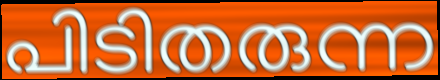
പിടിതരുന്ന